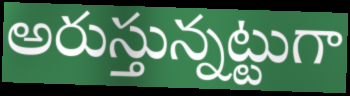
అరుస్తున్నట్టుగా